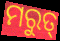
ମରୁତ୍